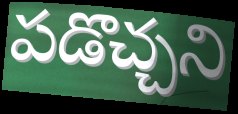
పడొచ్చని